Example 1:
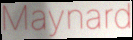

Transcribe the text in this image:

Maynard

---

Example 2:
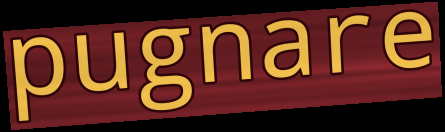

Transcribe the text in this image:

pugnare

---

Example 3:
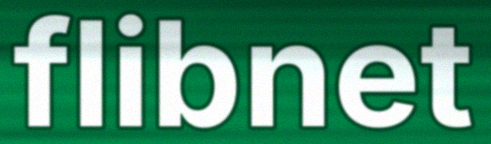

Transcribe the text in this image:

flibnet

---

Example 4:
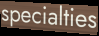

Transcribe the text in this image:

specialties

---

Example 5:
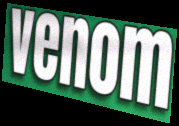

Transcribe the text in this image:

venom